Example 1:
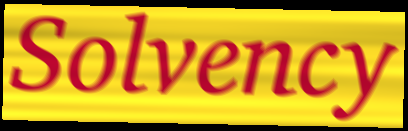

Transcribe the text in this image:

Solvency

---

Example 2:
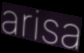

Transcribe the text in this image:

arisa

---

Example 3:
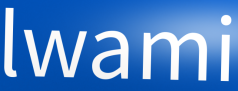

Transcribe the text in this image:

lwami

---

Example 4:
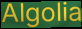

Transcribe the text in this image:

Algolia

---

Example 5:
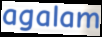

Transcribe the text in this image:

agalam